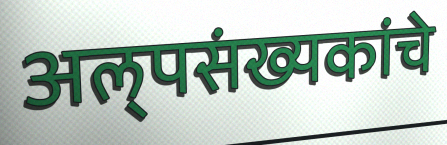
अल्पसंख्यकांचे